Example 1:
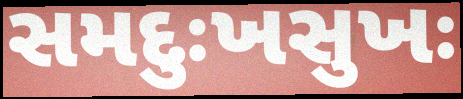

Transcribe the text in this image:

સમદુઃખસુખઃ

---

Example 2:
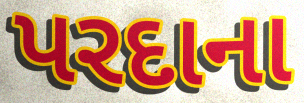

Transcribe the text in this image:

પરદાના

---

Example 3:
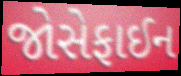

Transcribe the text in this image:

જોસેફાઈન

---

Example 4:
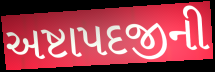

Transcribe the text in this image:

અષ્ટાપદજીની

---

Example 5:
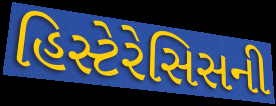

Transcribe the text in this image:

હિસ્ટેરેસિસની